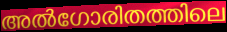
അൽഗോരിതത്തിലെ